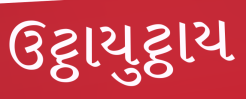
ઉટ્ઠાયુટ્ઠાય